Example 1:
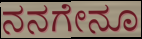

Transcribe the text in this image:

ನನಗೇನೂ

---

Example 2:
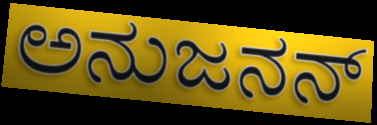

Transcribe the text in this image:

ಅನುಜನನ್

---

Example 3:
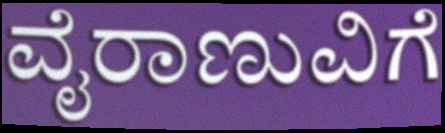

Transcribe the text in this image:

ವೈರಾಣುವಿಗೆ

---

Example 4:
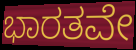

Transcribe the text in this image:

ಭಾರತವೇ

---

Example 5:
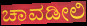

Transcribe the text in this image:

ಚಾವಡೀಲಿ